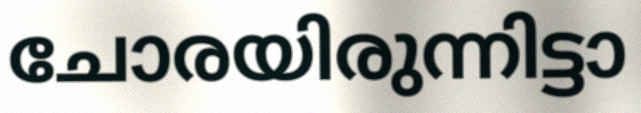
ചോരയിരുന്നിട്ടാ